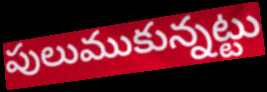
పులుముకున్నట్టు